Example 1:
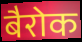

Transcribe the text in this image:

बैरोक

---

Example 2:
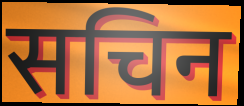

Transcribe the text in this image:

सचिन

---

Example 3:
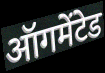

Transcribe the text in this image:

ऑगमेंटेड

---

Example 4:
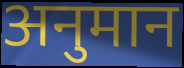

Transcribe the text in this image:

अनुमान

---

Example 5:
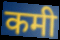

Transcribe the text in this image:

कमी